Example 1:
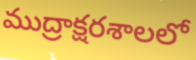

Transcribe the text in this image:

ముద్రాక్షరశాలలో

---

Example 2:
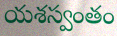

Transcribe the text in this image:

యశస్వంతం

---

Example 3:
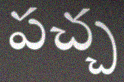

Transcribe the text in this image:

పచ్చ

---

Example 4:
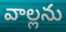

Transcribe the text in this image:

వాల్లను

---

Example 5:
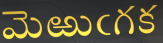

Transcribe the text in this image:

మెఱుఁగక